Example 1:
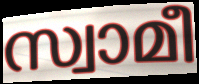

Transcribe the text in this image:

സ്വാമീ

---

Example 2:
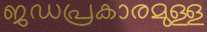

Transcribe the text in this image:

ജഡപ്രകാരമുള്ള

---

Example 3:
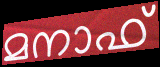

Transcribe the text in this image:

മനാഫ്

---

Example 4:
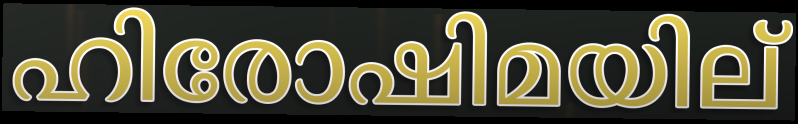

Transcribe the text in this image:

ഹിരോഷിമയില്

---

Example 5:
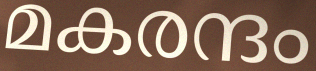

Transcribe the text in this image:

മകരന്ദം